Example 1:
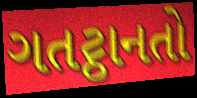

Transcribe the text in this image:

ગતટ્ઠાનતો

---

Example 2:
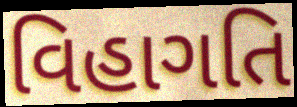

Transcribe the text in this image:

વિહાગતિ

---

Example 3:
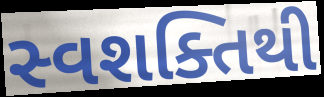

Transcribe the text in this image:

સ્વશક્તિથી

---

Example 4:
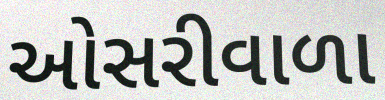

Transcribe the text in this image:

ઓસરીવાળા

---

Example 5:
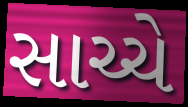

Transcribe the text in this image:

સાચ્ચે